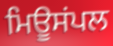
ਮਿਊਸਂਪਲ